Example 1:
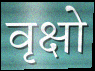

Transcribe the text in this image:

वृक्षो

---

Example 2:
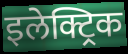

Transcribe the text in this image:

इलेक्ट्रिक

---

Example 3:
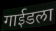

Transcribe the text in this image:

गाईडला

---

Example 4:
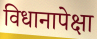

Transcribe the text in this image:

विधानापेक्षा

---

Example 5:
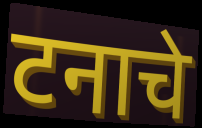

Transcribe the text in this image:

टनाचे